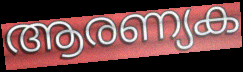
ആരണ്യക